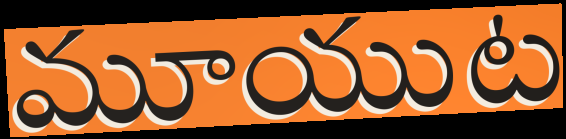
మూయుట